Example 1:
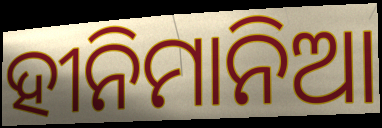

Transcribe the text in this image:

ହୀନିମାନିଆ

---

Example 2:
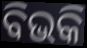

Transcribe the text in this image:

ବିଭକି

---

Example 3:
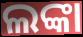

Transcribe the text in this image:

ଲଙ୍କା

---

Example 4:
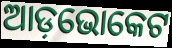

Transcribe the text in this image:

ଆଡ଼ଭୋକେଟ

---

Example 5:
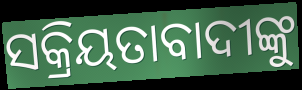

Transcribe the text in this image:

ସକ୍ରିୟତାବାଦୀଙ୍କୁ